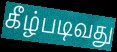
கீழ்படிவது